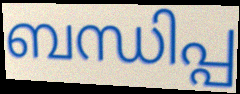
ബന്ധിപ്പ